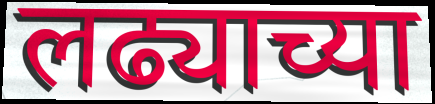
लढ्याच्या